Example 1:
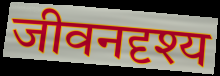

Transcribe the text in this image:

जीवनदृश्य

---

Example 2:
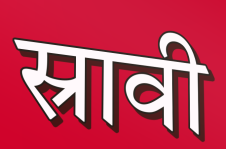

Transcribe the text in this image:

स्रावी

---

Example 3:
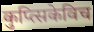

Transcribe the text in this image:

कुप्त्सिकेविच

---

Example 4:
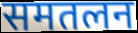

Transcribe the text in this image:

समतलन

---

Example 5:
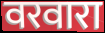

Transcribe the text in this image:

वरवारा